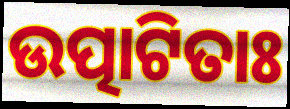
ଉତ୍ପାଟିତାଃ